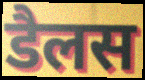
डैलस